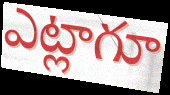
ఎట్లాగూ